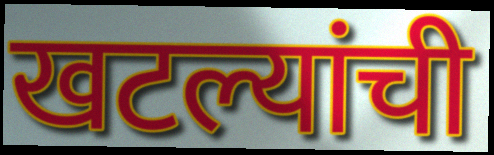
खटल्यांची